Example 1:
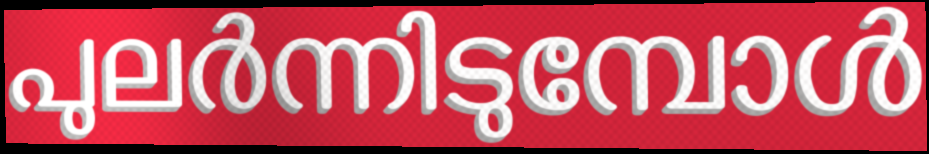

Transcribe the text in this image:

പുലർന്നിടുമ്പോൾ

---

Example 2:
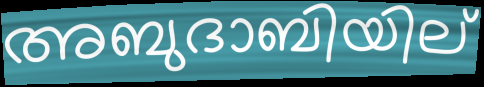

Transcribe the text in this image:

അബുദാബിയില്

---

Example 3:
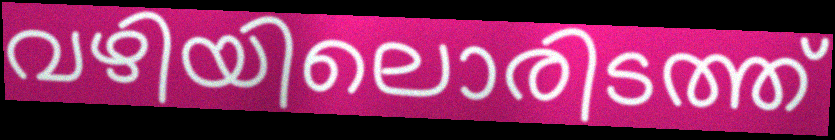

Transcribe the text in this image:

വഴിയിലൊരിടത്ത്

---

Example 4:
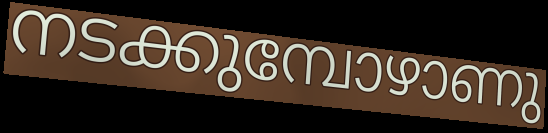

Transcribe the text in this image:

നടക്കുമ്പോഴാണു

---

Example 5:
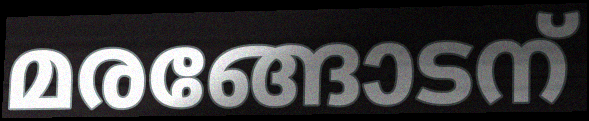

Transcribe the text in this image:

മരങ്ങോടന്